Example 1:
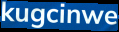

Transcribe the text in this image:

kugcinwe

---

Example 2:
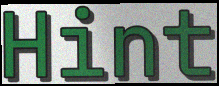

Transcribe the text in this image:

Hint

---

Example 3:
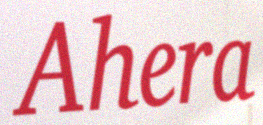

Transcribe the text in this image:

Ahera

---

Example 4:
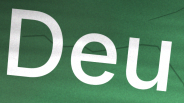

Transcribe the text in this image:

Deu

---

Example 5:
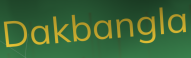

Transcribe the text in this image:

Dakbangla